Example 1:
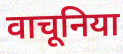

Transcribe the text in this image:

वाचूनिया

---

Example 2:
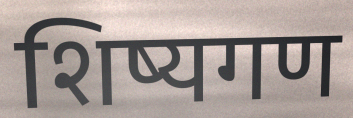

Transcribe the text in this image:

शिष्यगण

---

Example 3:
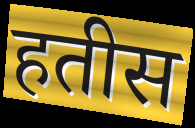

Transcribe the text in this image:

हतीस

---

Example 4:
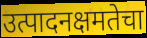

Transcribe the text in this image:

उत्पादनक्षमतेचा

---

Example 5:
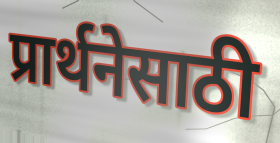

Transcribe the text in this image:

प्रार्थनेसाठी